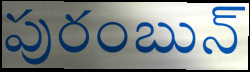
పురంబున్